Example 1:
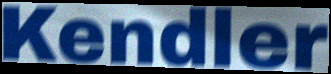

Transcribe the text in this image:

Kendler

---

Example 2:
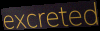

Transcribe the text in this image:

excreted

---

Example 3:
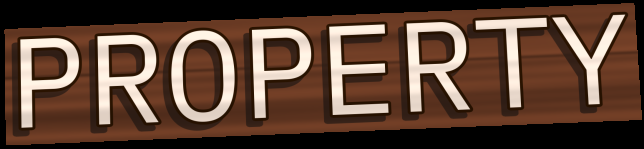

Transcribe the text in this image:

PROPERTY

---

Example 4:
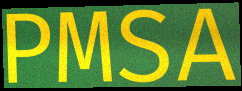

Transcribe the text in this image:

PMSA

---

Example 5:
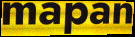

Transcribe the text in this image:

mapan